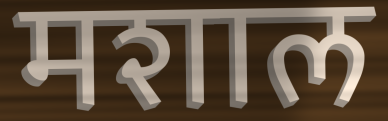
मशाल